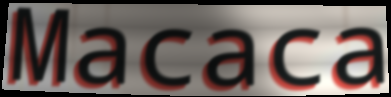
Macaca